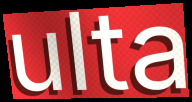
ulta